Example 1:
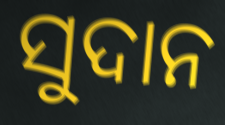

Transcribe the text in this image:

ସୁଦାନ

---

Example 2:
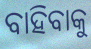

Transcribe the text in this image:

ବାହିବାକୁ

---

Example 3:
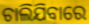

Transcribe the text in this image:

ଚାଲିଯିବାରେ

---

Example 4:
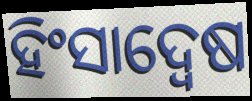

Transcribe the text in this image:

ହିଂସାଦ୍ୱେଷ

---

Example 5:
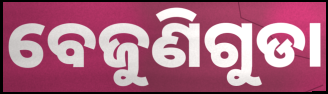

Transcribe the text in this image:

ବେଜୁଣିଗୁଡା